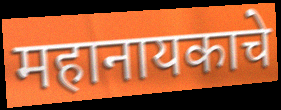
महानायकाचे